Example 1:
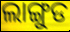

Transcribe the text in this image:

ଲାଙ୍ଗୁଡ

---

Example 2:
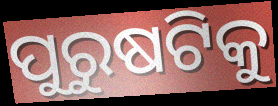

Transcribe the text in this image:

ପୁରୁଷଟିକୁ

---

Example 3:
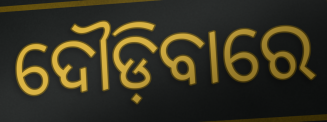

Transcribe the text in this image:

ଦୌଡ଼ିବାରେ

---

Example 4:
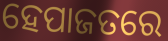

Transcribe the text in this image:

ହେପାଜତରେ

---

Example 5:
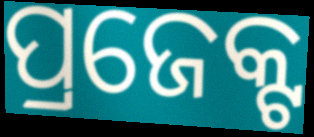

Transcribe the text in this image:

ପ୍ରଜେକ୍ଟ